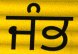
ਜੰਭ